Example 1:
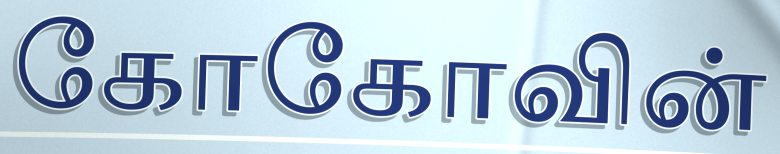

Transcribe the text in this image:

கோகோவின்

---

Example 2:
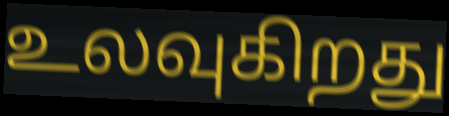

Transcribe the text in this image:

உலவுகிறது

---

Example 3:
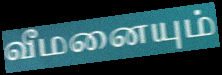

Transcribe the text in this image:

வீமனையும்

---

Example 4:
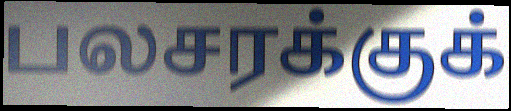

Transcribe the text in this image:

பலசரக்குக்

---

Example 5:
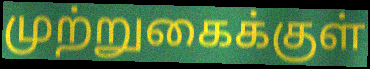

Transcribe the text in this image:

முற்றுகைக்குள்